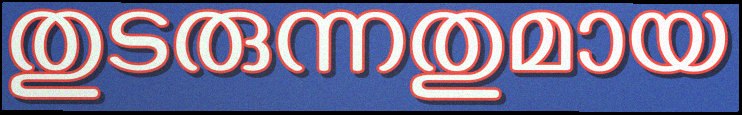
തുടരുന്നതുമായ